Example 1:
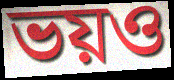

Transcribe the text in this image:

ভয়ও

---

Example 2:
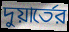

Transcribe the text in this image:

দুয়ার্তের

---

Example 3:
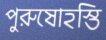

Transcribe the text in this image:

পুরুষোহস্তি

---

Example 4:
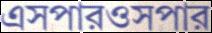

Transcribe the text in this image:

এসপারওসপার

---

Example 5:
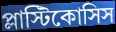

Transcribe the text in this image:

প্লাস্টিকোসিস